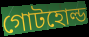
গোটহোল্ড